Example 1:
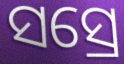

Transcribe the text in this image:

ସସ୍ରେ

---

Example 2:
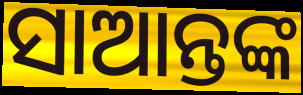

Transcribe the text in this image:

ସାଆନ୍ତଙ୍କ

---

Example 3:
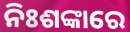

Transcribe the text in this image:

ନିଃଶଙ୍କାରେ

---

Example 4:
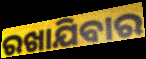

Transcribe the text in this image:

ରଖାଯିବାର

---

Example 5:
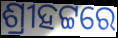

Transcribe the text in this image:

ଶ୍ରୀହଟ୍ଟରେ